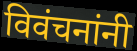
विवंचनांनी